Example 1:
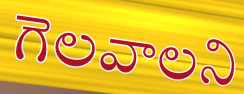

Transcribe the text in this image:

గెలవాలని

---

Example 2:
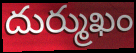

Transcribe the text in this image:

దుర్ముఖం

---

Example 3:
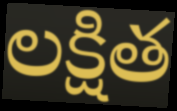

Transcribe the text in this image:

లక్షిత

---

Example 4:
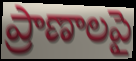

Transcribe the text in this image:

ప్రాణాలపై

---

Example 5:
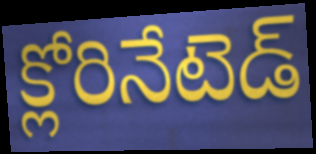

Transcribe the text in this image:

క్లోరినేటెడ్